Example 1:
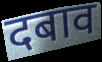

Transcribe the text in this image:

दबाव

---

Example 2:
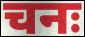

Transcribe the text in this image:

चनः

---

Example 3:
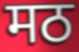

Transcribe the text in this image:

मठ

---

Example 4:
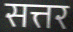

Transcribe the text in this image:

सत्तर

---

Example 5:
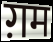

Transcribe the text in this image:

ग़म